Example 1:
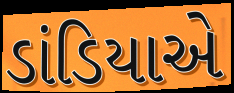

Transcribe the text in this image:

ડાંડિયાએ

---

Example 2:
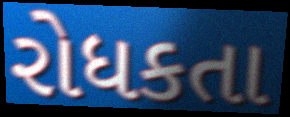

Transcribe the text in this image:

રોધકતા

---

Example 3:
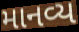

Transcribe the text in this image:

માનવ્ય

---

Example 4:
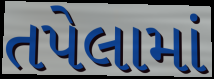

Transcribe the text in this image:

તપેલામાં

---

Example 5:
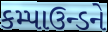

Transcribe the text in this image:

કમ્પાઉન્ડને